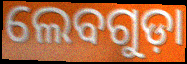
ଲେବଗୁଡ଼ା